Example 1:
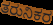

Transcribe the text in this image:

ತರುನಿಕರ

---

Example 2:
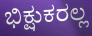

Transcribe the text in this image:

ಭಿಕ್ಷುಕರಲ್ಲ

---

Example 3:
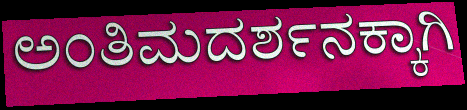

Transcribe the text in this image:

ಅಂತಿಮದರ್ಶನಕ್ಕಾಗಿ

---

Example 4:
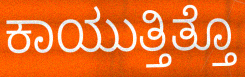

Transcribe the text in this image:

ಕಾಯುತ್ತಿತ್ತೊ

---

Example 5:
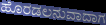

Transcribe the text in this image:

ಹೊರಡಲನುವಾದಾಗ